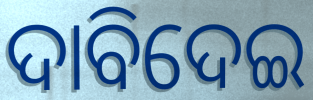
ଦାବିଦେଇ